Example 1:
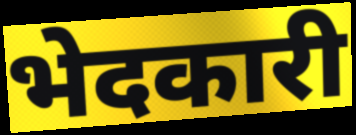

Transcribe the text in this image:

भेदकारी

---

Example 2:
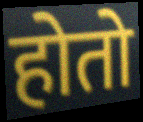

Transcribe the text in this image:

होतो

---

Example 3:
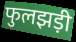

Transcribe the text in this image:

फुलझड़ी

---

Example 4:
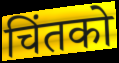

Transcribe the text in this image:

चिंतको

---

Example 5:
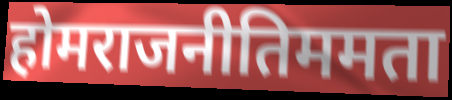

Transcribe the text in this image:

होमराजनीतिममता